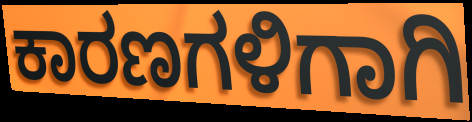
ಕಾರಣಗಳಿಗಾಗಿ